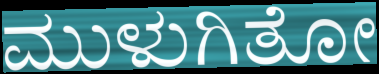
ಮುಳುಗಿತೋ